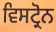
ਵਿਸਟ੍ਰੋਨ